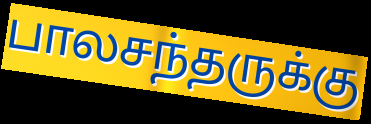
பாலசந்தருக்கு